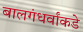
बालगंधर्वांकडे